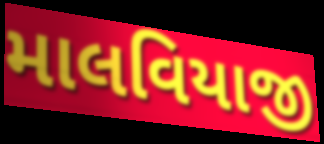
માલવિયાજી